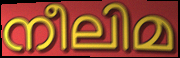
നീലിമ